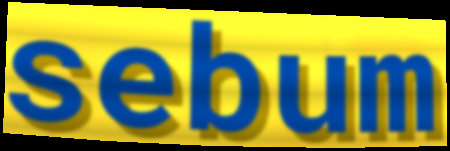
sebum